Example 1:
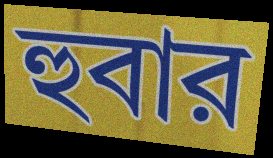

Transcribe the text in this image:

হুবার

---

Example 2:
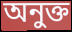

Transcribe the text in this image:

অনুক্ত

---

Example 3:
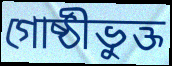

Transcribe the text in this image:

গোষ্ঠীভুক্ত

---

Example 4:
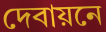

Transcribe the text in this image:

দেবায়নে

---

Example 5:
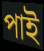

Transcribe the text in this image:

পাই